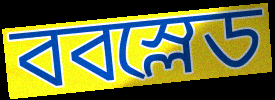
ববস্লেড